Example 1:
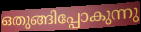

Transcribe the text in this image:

ഒതുങ്ങിപ്പോകുന്നു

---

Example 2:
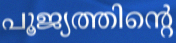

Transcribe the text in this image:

പൂജ്യത്തിന്റെ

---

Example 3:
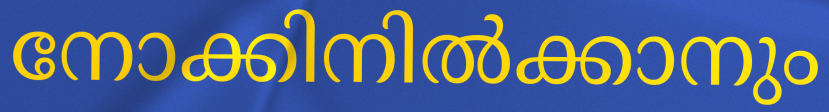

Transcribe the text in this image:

നോക്കിനിൽക്കാനും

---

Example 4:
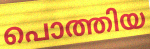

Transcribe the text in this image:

പൊത്തിയ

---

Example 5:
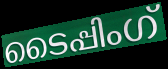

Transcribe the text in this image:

ടൈപ്പിംഗ്